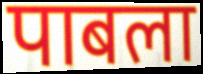
पाबला